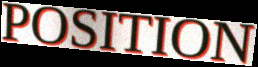
POSITION